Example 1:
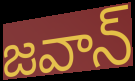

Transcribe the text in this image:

జవాన్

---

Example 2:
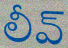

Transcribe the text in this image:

లీవ్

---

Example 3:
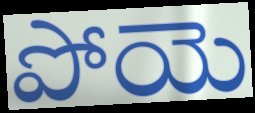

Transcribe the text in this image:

పోయె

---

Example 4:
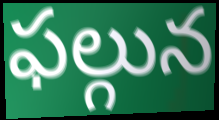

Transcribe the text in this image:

ఫల్గున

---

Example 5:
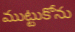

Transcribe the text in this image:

ముట్టుకోను